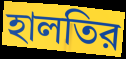
হালতির